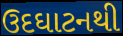
ઉદઘાટનથી